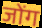
जोंग